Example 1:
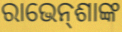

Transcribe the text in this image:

ରାଭେନ୍‌ଶାଙ୍କ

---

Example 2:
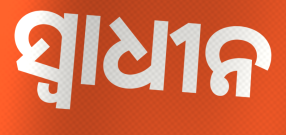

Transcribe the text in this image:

ସ୍ଵାଧୀନ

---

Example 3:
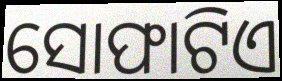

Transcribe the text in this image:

ସୋଫାଟିଏ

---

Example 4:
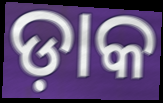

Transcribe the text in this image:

ଡ଼ାକ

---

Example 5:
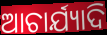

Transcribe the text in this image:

ଆଚାର୍ଯ୍ୟାଦି